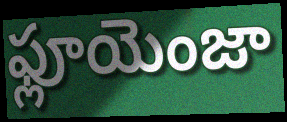
ఫ్లూయెంజా